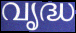
വൃദ്ധ